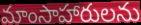
మాంసాహారులను